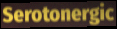
Serotonergic